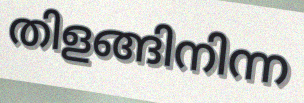
തിളങ്ങിനിന്ന